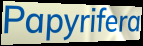
Papyrifera